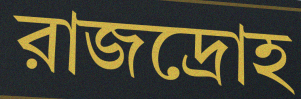
রাজদ্রোহ